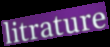
litrature